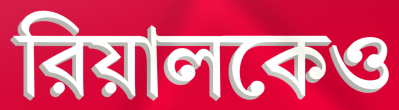
রিয়ালকেও